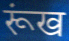
रूंख